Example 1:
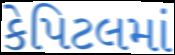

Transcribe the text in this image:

કેપિટલમાં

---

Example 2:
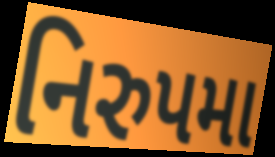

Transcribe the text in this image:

નિરુપમા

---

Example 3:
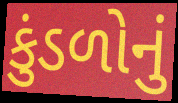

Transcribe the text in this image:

કુંડળોનું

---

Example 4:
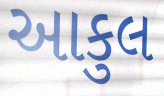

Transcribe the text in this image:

આકુલ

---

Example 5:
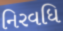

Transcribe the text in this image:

નિરવધિ